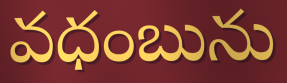
వధంబును